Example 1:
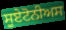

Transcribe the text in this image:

ਸੂਏਟੋਨੀਅਸ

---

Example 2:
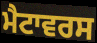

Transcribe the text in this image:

ਮੈਟਾਵਰਸ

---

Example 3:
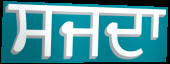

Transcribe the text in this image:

ਸਜਦਾ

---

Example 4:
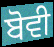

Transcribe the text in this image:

ਬੋਵੀ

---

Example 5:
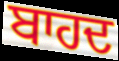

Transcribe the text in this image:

ਬਾਹਦ